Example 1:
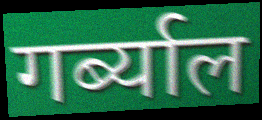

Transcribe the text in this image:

गर्ब्याल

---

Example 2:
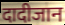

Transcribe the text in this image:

दादीजान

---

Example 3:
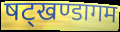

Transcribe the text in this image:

षट्खण्डागम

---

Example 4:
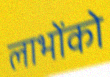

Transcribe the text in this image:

लाभोंको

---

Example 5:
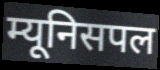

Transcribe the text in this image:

म्यूनिसपल